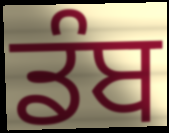
ਡੰਬ